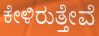
ಕೇಳಿರುತ್ತೇವೆ